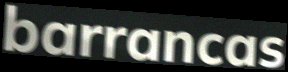
barrancas